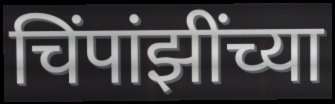
चिंपांझींच्या